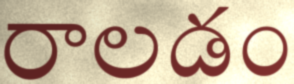
రాలడం